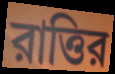
রাত্তির